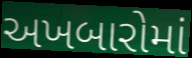
અખબારોમાં